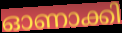
ഓണാക്കി